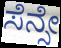
ಸೆನ್ಸೇ